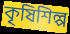
কৃষিশিল্প